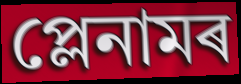
প্লেনামৰ